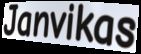
Janvikas